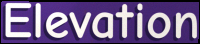
Elevation